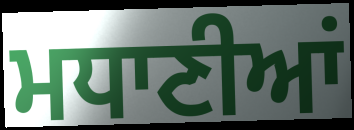
ਮਧਾਣੀਆਂ